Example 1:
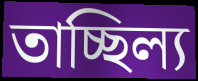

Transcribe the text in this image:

তাচ্ছিল্য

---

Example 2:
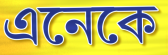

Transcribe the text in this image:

এনেকে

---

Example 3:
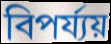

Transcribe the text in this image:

বিপৰ্য্যয়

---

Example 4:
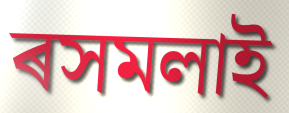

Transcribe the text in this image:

ৰসমলাই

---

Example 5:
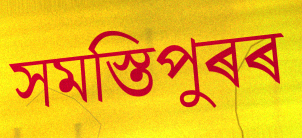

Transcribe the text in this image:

সমস্তিপুৰৰ